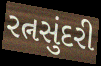
રત્નસુંદરી